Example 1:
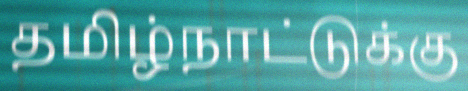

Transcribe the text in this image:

தமிழ்நாட்டுக்கு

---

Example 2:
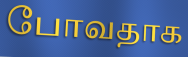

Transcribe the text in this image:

போவதாக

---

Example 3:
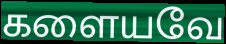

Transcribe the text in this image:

களையவே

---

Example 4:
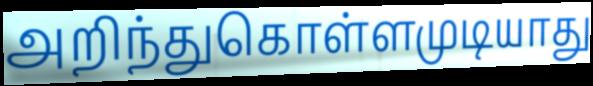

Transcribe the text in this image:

அறிந்துகொள்ளமுடியாது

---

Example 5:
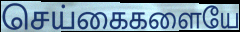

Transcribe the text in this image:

செய்கைகளையே